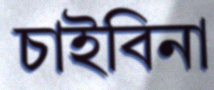
চাইবিনা